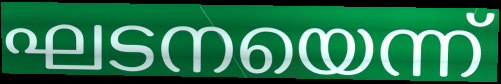
ഘടനയെന്ന്